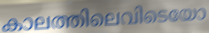
കാലത്തിലെവിടെയോ